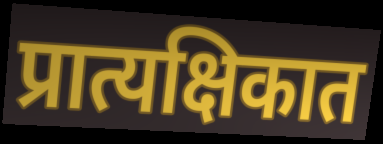
प्रात्यक्षिकात